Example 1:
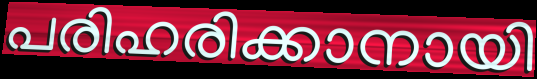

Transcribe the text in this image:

പരിഹരിക്കാനായി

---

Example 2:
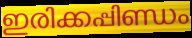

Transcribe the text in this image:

ഇരിക്കപ്പിണ്ഡം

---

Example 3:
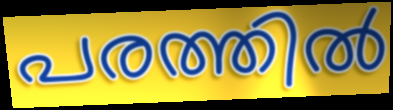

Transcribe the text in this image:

പരത്തിൽ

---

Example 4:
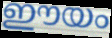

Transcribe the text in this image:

ഈയം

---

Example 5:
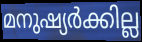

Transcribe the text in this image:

മനുഷ്യർക്കില്ല